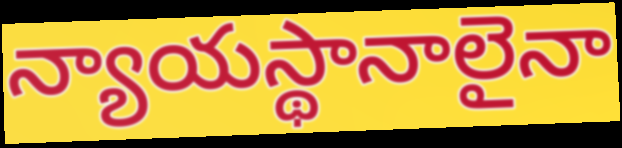
న్యాయస్థానాలైనా